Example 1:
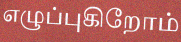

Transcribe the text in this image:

எழுப்புகிறோம்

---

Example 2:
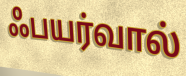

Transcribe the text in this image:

ஃபயர்வால்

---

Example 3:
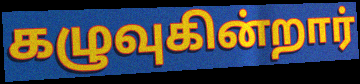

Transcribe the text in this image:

கழுவுகின்றார்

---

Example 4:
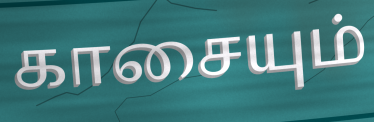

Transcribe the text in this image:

காசையும்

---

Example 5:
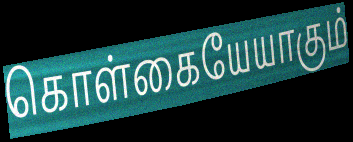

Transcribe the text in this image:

கொள்கையேயாகும்